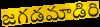
జగడమాడిరి